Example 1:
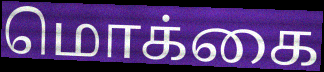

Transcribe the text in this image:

மொக்கை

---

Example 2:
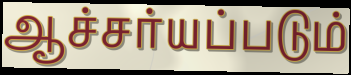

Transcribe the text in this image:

ஆச்சர்யப்படும்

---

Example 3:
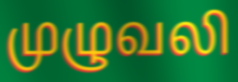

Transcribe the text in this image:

முழுவலி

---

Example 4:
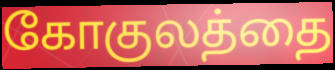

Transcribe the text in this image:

கோகுலத்தை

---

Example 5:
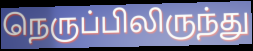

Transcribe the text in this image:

நெருப்பிலிருந்து